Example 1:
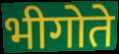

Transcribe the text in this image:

भीगोते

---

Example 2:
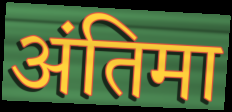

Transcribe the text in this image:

अंतिमा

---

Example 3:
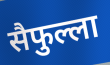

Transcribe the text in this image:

सैफुल्ला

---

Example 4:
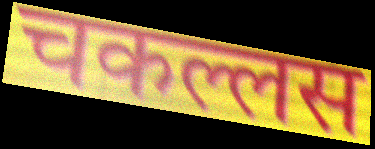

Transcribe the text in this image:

चकल्लस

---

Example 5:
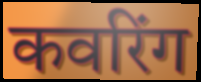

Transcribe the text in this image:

कवरिंग